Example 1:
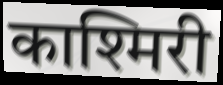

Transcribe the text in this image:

काश्मिरी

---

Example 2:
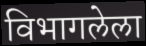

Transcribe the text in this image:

विभागलेला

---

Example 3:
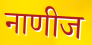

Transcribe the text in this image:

नाणीज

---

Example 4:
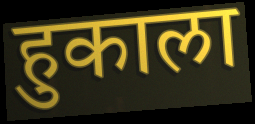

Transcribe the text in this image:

हुकाला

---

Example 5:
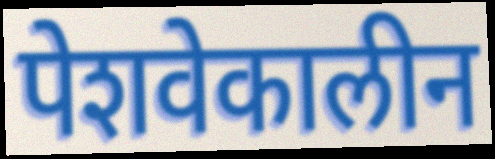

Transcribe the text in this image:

पेशवेकालीन